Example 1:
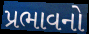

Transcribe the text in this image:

પ્રભાવનો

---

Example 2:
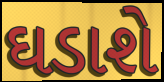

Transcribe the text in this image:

ઘડાશે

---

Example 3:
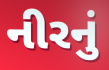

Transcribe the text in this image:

નીરનું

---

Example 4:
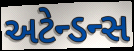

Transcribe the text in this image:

અટેન્ડન્સ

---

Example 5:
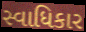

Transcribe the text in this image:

સ્વાધિકાર